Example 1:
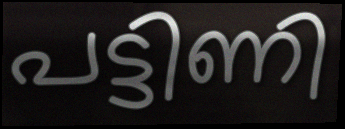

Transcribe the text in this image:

പട്ടിണി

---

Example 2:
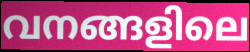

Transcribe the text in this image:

വനങ്ങളിലെ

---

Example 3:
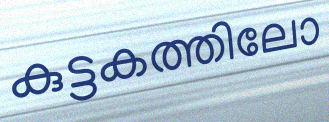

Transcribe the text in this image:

കുട്ടകത്തിലോ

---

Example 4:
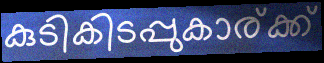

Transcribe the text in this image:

കുടികിടപ്പുകാര്ക്ക്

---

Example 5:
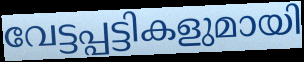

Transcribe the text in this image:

വേട്ടപ്പട്ടികളുമായി